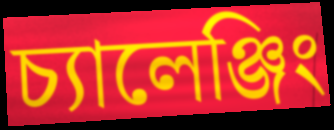
চ্যালেঞ্জিং